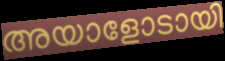
അയാളോടായി